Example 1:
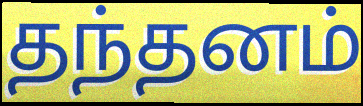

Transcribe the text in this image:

தந்தனம்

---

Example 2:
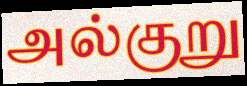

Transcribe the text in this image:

அல்குறு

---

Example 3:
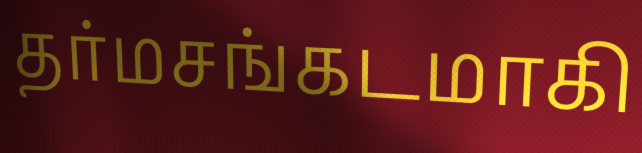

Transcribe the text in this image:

தர்மசங்கடமாகி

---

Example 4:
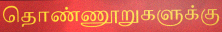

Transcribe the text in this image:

தொண்ணூறுகளுக்கு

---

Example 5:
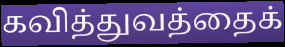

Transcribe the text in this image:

கவித்துவத்தைக்